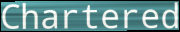
Chartered